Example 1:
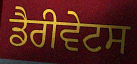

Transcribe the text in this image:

ਡੈਰੀਵੇਟਸ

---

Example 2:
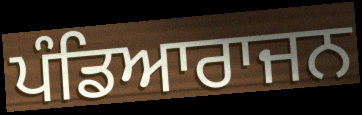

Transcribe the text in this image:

ਪੰਡਿਆਰਾਜਨ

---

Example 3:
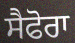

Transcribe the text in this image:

ਸੈਫੋਰਾ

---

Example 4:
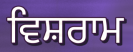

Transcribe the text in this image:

ਵਿਸ਼ਰਾਮ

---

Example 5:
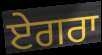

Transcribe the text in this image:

ਏਗਰਾ